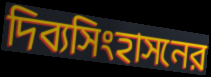
দিব্যসিংহাসনের